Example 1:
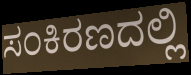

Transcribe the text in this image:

ಸಂಕಿರಣದಲ್ಲಿ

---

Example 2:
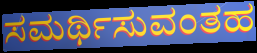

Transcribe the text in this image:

ಸಮರ್ಥಿಸುವಂತಹ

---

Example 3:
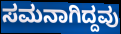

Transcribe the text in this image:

ಸಮನಾಗಿದ್ದವು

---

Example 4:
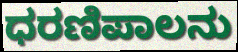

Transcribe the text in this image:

ಧರಣಿಪಾಲನು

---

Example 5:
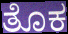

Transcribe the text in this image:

ತೊಕ